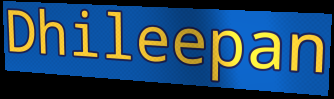
Dhileepan